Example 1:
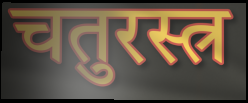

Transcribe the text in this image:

चतुरस्त्र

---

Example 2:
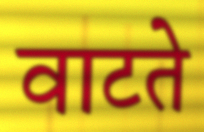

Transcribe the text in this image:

वाटते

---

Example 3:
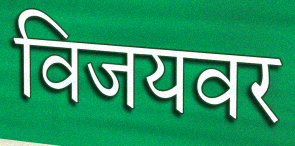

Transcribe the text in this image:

विजयवर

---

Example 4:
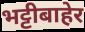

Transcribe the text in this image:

भट्टीबाहेर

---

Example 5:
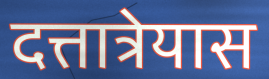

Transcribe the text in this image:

दत्तात्रेयास